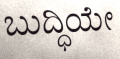
ಬುದ್ಧಿಯೇ